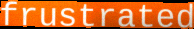
frustrated